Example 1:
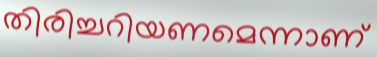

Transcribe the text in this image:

തിരിച്ചറിയണമെന്നാണ്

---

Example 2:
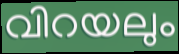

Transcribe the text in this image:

വിറയലും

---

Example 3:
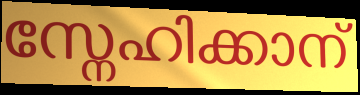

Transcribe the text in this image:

സ്നേഹിക്കാന്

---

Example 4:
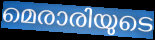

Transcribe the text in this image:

മെരാരിയുടെ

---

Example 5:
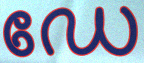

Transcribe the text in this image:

ഡേ